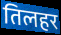
तिलहर